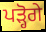
ਪੜ੍ਹੋਗੇ